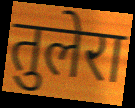
तुलेरा